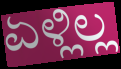
ಏಳ್ಲಿಲ್ಲ